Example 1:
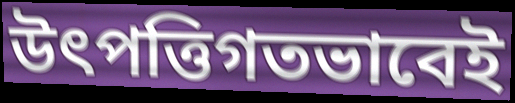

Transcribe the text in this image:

উৎপত্তিগতভাবেই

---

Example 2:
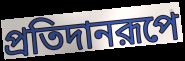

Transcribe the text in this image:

প্রতিদানরূপে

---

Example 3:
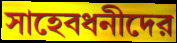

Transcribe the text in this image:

সাহেবধনীদের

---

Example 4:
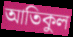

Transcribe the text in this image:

আতিকুল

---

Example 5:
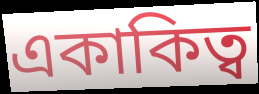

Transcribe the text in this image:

একাকিত্ব